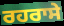
ਰਹਰਾਸੇ